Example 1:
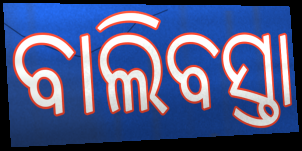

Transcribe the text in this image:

ବାଲିବସ୍ତା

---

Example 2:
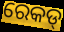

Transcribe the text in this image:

ରେକଡ୍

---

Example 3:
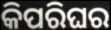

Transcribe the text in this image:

କିପରିଘର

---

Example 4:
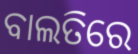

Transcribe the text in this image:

ବାଲତିରେ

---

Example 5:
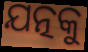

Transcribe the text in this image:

ଯତ୍ନକୁ